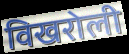
विखरोली